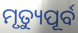
ମୃତ୍ୟୁପୂର୍ବ